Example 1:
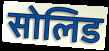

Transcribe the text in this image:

सोलिड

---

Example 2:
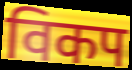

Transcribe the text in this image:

विकप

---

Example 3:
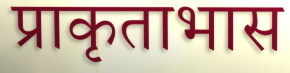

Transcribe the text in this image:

प्राकृताभास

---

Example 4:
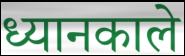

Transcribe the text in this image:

ध्यानकाले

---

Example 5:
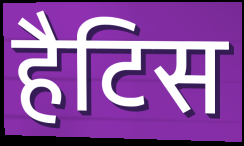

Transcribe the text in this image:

हैटिस